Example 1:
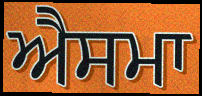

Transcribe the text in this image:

ਐਸਮਾ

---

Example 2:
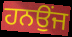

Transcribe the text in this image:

ਹਨਉਂਜ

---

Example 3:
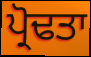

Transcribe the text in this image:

ਪ੍ਰੋਢਤਾ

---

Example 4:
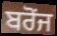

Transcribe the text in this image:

ਬਰੋਂਜ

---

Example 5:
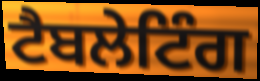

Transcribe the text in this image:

ਟੈਬਲੇਟਿੰਗ